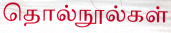
தொல்நூல்கள்